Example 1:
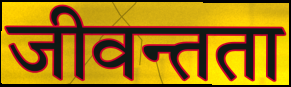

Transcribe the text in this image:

जीवन्तता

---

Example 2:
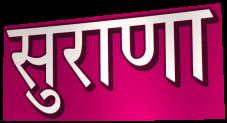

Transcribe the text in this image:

सुराणा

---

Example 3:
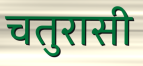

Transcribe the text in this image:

चतुरासी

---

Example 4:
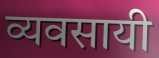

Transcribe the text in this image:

व्यवसायी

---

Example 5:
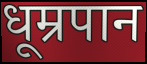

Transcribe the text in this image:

धूम्रपान